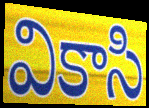
వికాసి